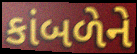
કાંબળેને